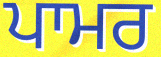
ਪਾਮਰ